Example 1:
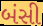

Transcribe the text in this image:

બંસી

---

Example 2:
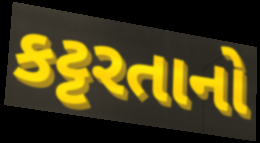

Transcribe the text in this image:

કટ્ટરતાનો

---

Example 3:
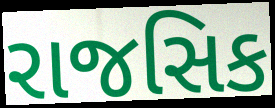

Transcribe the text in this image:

રાજસિક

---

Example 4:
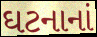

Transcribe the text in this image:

ઘટનાનાં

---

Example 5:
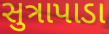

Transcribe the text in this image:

સુત્રાપાડા